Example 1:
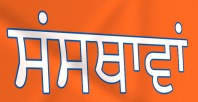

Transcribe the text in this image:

ਸਂਸਥਾਵਾਂ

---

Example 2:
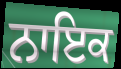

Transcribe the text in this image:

ਨਾਇਕ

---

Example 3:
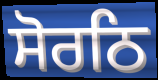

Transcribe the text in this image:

ਸੋਰਠਿ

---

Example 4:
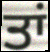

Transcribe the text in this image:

ਤਾਂ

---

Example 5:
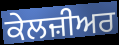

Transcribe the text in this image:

ਕੇਲਜ਼ੀਅਰ